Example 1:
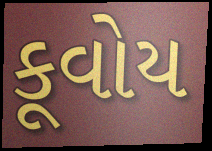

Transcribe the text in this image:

કૂવોય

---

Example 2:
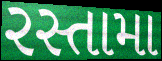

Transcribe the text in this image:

રસ્તામા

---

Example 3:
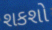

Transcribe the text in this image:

શકશો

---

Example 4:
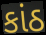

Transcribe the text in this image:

કાંઠ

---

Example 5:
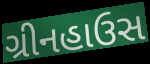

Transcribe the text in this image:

ગ્રીનહાઉસ